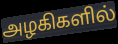
அழகிகளில்